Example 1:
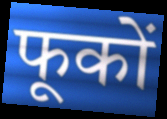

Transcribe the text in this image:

फूकों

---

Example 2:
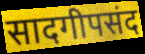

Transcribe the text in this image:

सादगीपसंद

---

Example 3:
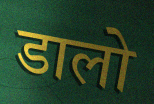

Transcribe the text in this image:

डालो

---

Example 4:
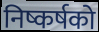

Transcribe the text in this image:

निष्कर्षको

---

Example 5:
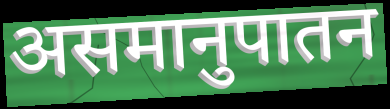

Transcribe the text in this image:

असमानुपातन